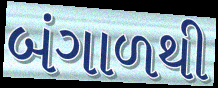
બંગાળથી